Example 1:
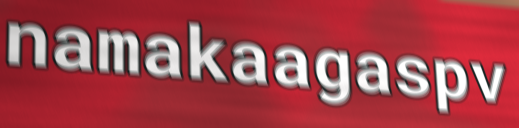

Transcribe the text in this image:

namakaagaspv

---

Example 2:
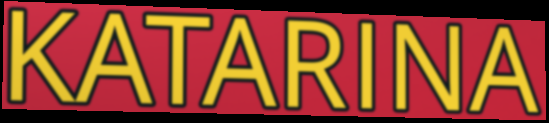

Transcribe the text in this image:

KATARINA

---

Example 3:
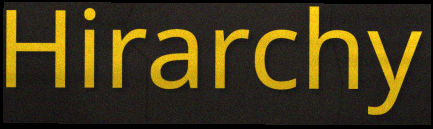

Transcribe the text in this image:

Hirarchy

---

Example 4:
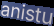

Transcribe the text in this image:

anistu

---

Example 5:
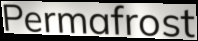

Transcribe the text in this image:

Permafrost